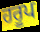
ਹਰੂਪ